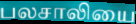
பலசாலியை